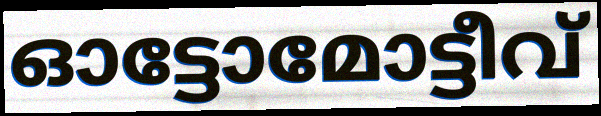
ഓട്ടോമോട്ടീവ്